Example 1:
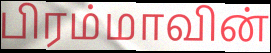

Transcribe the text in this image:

பிரம்மாவின்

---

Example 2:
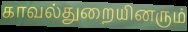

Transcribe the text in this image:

காவல்துறையினரும்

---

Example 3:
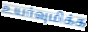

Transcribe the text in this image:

உயர்வுமிக்க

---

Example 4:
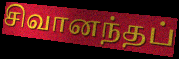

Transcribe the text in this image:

சிவானந்தப்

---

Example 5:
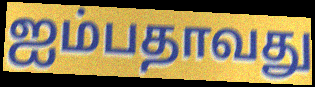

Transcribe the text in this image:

ஐம்பதாவது